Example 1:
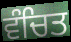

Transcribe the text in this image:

ਵੰਚਿਤ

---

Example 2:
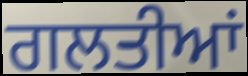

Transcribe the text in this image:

ਗਲਤੀਆਂ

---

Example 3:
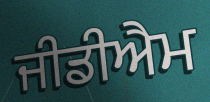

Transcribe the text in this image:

ਜੀਡੀਐਮ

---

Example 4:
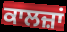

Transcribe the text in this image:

ਕਾਲਜ਼ਾਂ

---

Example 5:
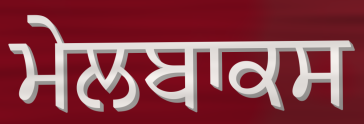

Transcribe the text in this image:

ਮੇਲਬਾਕਸ